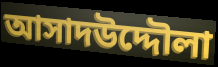
আসাদউদ্দৌলা